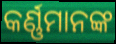
କର୍ଣ୍ଣମାନଙ୍କ